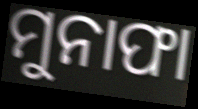
ମୁନାଫା